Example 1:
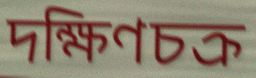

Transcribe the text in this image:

দক্ষিণচক্র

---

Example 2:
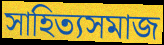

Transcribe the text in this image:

সাহিত্যসমাজ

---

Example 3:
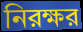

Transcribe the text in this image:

নিরক্ষর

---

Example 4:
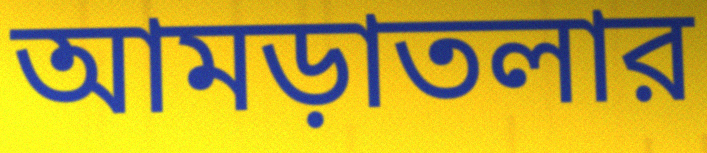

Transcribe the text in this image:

আমড়াতলার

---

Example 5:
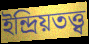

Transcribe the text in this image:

ইন্দ্রিয়তত্ত্ব